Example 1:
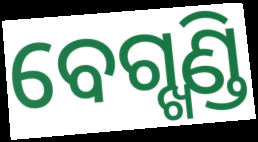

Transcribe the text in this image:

ବେଗ୍ଖଣ୍ଡି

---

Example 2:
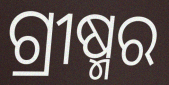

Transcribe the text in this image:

ଗ୍ରୀଷ୍ମର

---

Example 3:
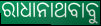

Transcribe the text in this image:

ରାଧାନାଥବାବୁ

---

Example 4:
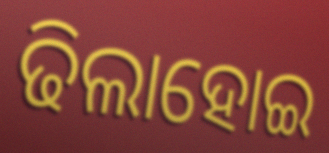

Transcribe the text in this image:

ଢିଲାହୋଇ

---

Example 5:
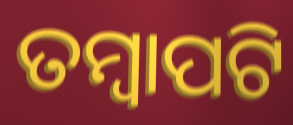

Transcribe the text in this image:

ତମ୍ବାପଟି